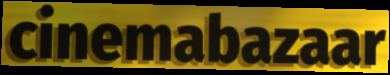
cinemabazaar